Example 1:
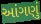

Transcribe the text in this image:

આંગણું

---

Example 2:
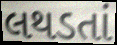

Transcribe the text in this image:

લથડતાં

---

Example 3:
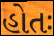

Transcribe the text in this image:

હોતઃ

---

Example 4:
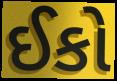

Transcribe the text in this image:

ઈકો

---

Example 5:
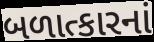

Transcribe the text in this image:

બળાત્કારનાં